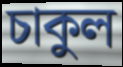
চাকুল